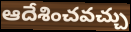
ఆదేశించవచ్చు